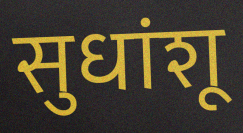
सुधांशू